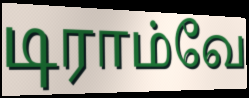
டிராம்வே